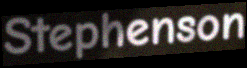
Stephenson